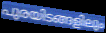
പുരയിടങ്ങളിലും